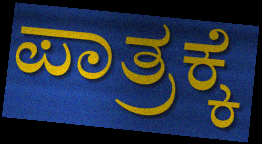
ಪಾತ್ರಕ್ಕೆ